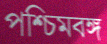
পশ্চিমবঙ্গ